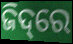
ଜିଦ୍‌ରେ